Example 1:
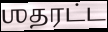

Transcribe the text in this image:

ஶதரட்ட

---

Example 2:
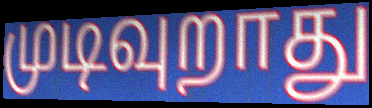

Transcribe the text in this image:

முடிவுறாது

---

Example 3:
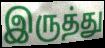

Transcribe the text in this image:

இருத்து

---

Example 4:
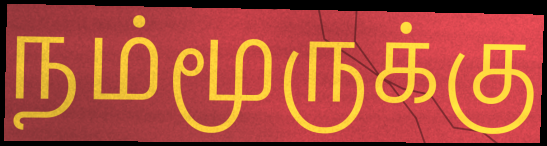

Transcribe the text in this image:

நம்மூருக்கு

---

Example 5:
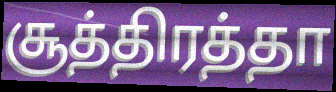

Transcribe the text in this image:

சூத்திரத்தா